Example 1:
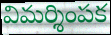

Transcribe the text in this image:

విమర్శింపక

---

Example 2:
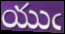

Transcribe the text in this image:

యుఁ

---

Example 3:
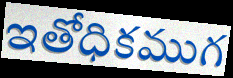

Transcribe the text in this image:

ఇతోధికముగ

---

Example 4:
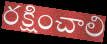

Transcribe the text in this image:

రక్షించాలి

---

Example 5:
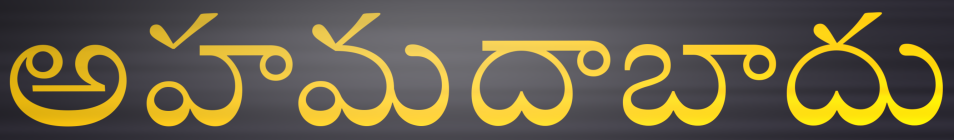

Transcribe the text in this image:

అహమదాబాదు